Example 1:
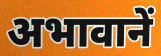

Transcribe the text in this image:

अभावानें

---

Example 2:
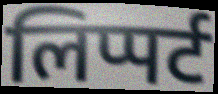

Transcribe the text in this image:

लिप्पर्ट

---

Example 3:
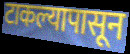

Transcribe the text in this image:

टाकल्यापासून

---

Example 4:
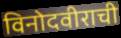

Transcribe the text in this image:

विनोदवीराची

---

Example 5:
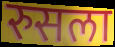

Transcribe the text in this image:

रुसला